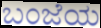
ಬಂಜೆಯ